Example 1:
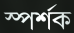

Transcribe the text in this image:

স্পর্শক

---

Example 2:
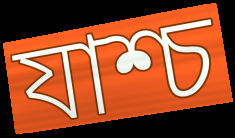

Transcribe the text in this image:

যাশ্চ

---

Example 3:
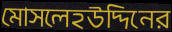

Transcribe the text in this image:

মোসলেহউদ্দিনের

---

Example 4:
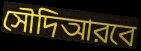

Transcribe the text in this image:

সৌদিআরবে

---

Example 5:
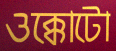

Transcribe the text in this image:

ওক্কোটো